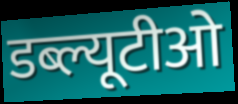
डब्ल्यूटीओ